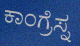
ಕಾಂಗ್ರೆಸ್ನ